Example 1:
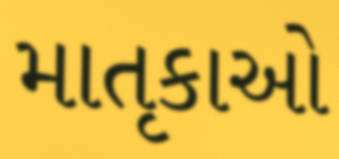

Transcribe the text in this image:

માતૃકાઓ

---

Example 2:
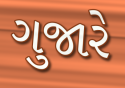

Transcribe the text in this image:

ગુજારે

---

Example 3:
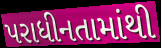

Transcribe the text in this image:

પરાધીનતામાંથી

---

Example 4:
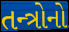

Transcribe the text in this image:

તન્ત્રોનો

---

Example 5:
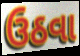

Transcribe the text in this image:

ઉઠવા